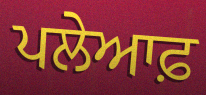
ਪਲੇਆਫ਼